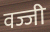
वज्जी